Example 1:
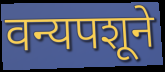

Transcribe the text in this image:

वन्यपशूने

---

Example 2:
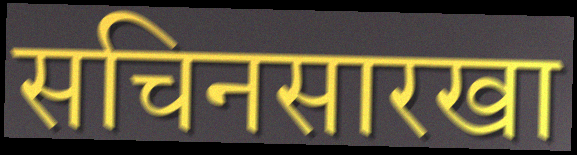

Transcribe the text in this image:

सचिनसारखा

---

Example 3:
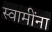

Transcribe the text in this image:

स्वामींना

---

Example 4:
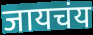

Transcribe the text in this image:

जायचंय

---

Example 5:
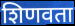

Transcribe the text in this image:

शिणवता